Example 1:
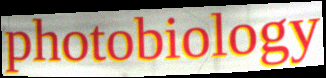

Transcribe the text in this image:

photobiology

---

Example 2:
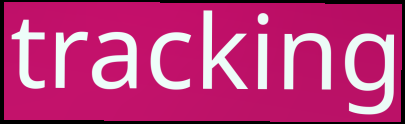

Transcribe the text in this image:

tracking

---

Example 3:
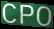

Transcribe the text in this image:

CPO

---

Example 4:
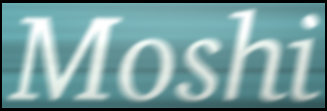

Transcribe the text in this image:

Moshi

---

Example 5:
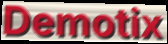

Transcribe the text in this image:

Demotix